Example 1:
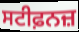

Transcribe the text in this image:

ਸਟੀਫ਼ਨਜ਼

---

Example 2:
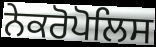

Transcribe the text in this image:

ਨੇਕਰੋਪੋਲਿਸ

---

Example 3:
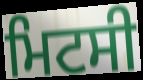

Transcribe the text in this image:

ਮਿਟਸੀ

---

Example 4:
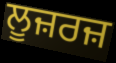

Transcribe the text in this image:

ਲੂਜ਼ਰਜ਼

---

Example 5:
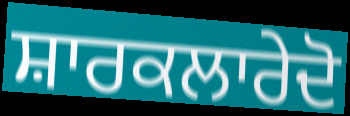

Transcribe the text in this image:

ਸ਼ਾਰਕਲਾਰੇਦੋ